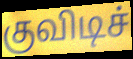
குவிடிச்